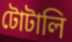
টোটালি